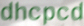
dhcpcd